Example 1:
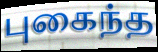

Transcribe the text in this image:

புகைந்த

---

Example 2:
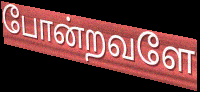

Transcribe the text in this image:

போன்றவளே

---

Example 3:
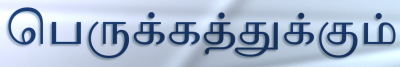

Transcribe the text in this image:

பெருக்கத்துக்கும்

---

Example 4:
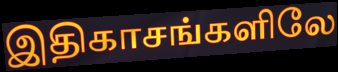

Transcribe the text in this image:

இதிகாசங்களிலே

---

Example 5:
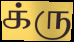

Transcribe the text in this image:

க்ரு